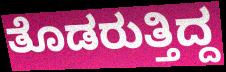
ತೊಡರುತ್ತಿದ್ದ